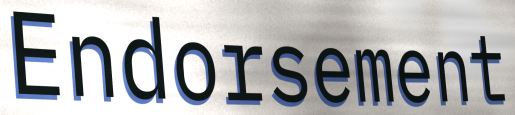
Endorsement